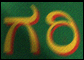
ಗರಿ